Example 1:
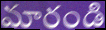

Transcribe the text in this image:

మారండి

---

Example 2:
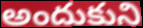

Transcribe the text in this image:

అందుకుని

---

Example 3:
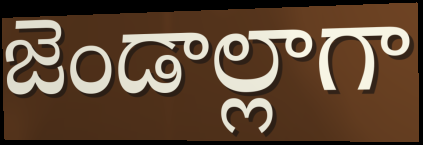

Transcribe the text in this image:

జెండాల్లాగా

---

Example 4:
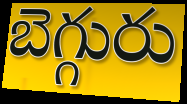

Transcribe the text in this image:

బెగ్గురు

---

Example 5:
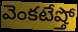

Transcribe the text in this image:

వెంకటేష్తో